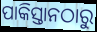
ପାକିସ୍ତାନଠାରୁ